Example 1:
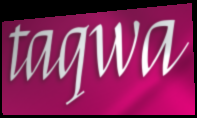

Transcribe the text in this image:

taqwa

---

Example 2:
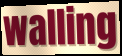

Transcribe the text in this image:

walling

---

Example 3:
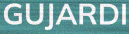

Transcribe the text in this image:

GUJARDI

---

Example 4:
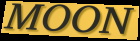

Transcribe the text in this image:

MOON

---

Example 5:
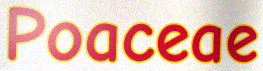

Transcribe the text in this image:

Poaceae